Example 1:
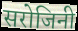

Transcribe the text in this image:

सरोजिनी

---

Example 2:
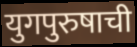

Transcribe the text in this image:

युगपुरुषाची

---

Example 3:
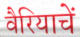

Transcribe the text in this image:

वैरियाचें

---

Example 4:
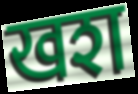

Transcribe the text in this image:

खश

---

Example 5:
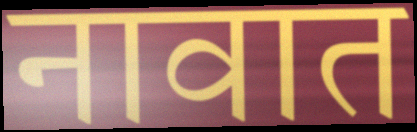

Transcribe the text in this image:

नावात